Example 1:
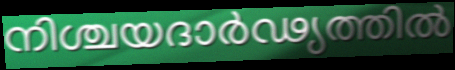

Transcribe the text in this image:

നിശ്ചയദാർഢ്യത്തിൽ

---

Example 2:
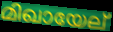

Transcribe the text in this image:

മിഖായേല്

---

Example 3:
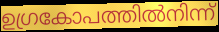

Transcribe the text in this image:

ഉഗ്രകോപത്തിൽനിന്ന്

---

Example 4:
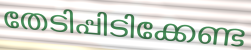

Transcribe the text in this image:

തേടിപ്പിടിക്കേണ്ട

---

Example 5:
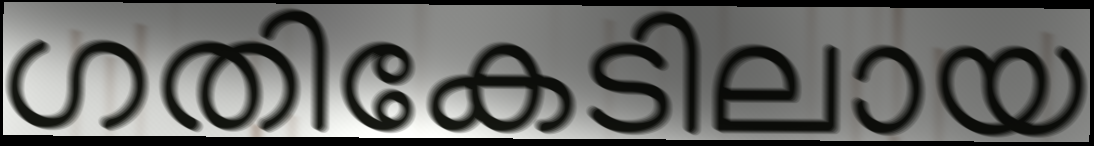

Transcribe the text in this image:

ഗതികേടിലായ